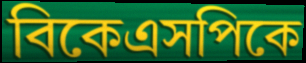
বিকেএসপিকে